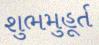
શુભમુહૂર્ત